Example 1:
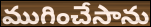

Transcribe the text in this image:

ముగించేసాను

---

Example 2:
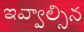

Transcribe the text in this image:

ఇవ్వాల్సిన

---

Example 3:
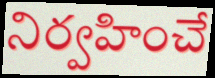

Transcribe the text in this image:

నిర్వహించే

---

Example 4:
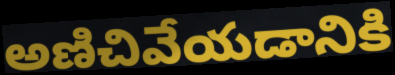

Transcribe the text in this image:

అణిచివేయడానికి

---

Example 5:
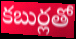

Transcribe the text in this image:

కబుర్లతో